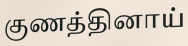
குணத்தினாய்